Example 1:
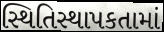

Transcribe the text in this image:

સ્થિતિસ્થાપકતામાં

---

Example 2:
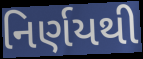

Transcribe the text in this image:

નિર્ણયથી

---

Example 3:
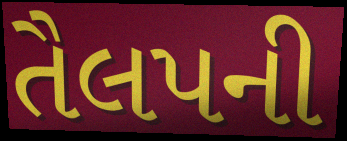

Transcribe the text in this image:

તૈલપની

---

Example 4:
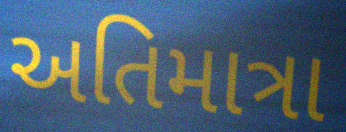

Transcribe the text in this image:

અતિમાત્રા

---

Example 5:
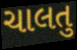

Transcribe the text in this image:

ચાલતુ